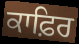
ਕਾਫ਼ਿਰ